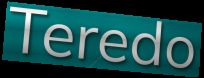
Teredo